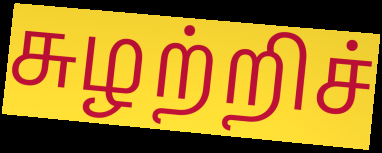
சுழற்றிச்